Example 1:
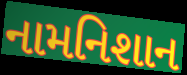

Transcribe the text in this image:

નામનિશાન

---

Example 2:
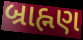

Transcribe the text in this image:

બ્રાહ્નણ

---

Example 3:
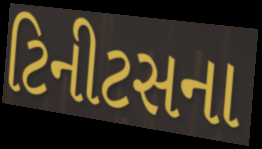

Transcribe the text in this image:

ટિનીટસના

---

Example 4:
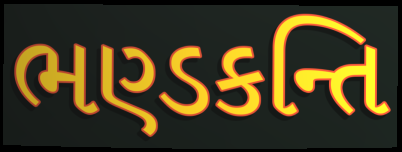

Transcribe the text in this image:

ભણ્ડકન્તિ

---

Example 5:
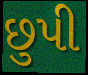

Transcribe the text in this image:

છુપી